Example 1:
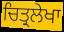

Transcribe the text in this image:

ਚਿਤ੍ਰਲੇਖਾ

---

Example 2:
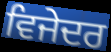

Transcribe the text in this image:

ਵਿਜੇਦਰ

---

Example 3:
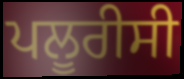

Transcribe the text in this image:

ਪਲੂਰੀਸੀ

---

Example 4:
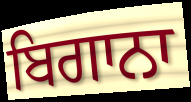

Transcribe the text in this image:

ਬਿਗਾਨਾ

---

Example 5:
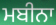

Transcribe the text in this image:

ਮਬੀਨਾ